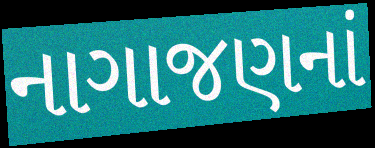
નાગાજણનાં